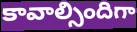
కావాల్సిందిగా